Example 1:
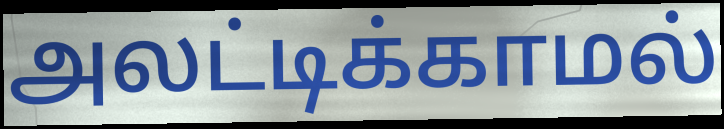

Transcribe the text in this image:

அலட்டிக்காமல்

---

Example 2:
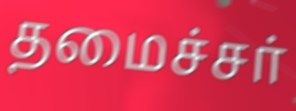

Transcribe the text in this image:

தமைச்சர்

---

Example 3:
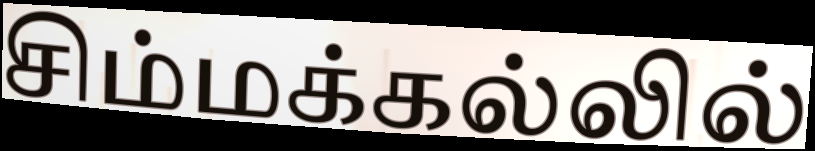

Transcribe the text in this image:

சிம்மக்கல்லில்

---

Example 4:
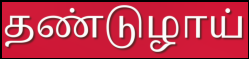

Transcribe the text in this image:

தண்டுழாய்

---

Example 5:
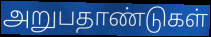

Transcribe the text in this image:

அறுபதாண்டுகள்